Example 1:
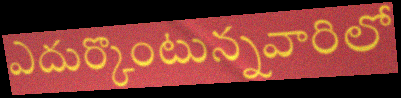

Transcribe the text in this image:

ఎదుర్కొంటున్నవారిలో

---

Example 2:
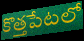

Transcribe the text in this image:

కొత్తపేటలో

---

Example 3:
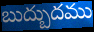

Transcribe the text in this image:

బుద్బుదము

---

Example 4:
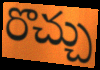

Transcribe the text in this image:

రొచ్చు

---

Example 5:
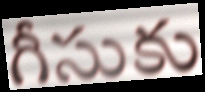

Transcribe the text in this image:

గీసుకు